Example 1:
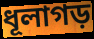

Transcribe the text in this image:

ধূলাগড়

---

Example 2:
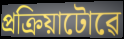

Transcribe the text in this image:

প্ৰক্ৰিয়াটোৱে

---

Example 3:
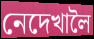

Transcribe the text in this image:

নেদেখালৈ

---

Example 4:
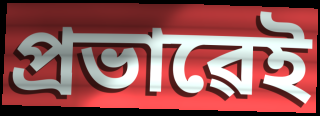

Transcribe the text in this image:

প্ৰভাৱেই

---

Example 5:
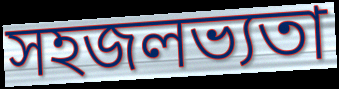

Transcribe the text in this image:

সহজলভ্যতা